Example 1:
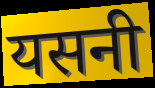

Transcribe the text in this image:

यसनी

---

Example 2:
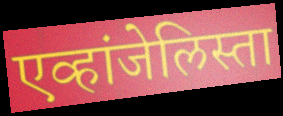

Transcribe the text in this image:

एव्हांजेलिस्ता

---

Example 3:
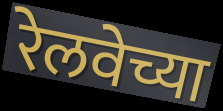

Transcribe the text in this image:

रेलवेच्या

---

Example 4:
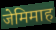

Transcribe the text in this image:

जेमिमाह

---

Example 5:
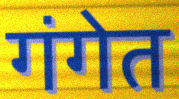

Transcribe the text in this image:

गंगेत